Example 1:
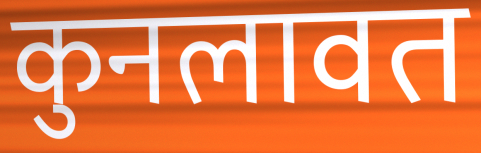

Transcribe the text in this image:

कुनलावत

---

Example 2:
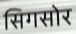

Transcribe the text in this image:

सिगसोर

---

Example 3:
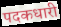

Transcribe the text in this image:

पदकधारी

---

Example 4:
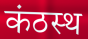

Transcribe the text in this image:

कंठस्थ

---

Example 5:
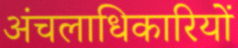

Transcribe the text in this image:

अंचलाधिकारियों